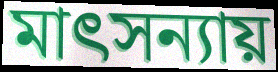
মাৎসন্যায়